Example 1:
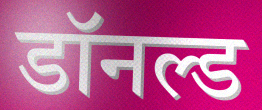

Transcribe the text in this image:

डॉनल्ड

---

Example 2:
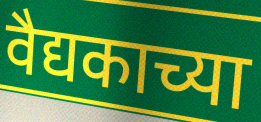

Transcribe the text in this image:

वैद्यकाच्या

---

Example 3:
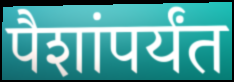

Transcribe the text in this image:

पैशांपर्यंत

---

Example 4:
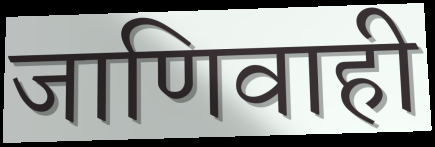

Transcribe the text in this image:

जाणिवाही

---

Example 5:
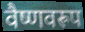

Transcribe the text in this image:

वैष्णवरूप